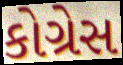
કોગ્રેસ